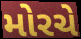
મોરચે